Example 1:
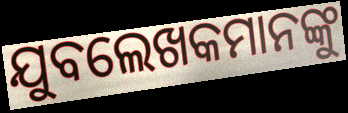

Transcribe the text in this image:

ଯୁବଲେଖକମାନଙ୍କୁ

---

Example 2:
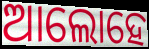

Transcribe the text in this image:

ଆଲୋହେ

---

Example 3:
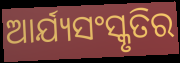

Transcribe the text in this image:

ଆର୍ଯ୍ୟସଂସ୍କୃତିର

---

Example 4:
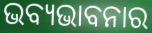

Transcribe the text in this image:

ଭବ୍ୟଭାବନାର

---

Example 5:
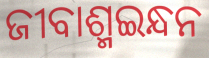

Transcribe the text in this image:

ଜୀବାଶ୍ମଇନ୍ଧନ